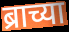
ब्राच्या